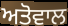
ਅਤੋਵਾਲ